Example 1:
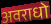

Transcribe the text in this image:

अवराधो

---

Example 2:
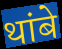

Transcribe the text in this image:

थांबे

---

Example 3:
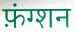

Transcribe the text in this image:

फ़ंग्शन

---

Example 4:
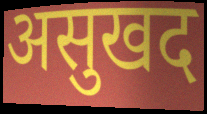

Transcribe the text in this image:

असुखद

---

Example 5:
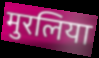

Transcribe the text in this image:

मुरलिया